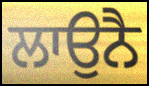
ਲਾਉਨੈ